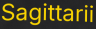
Sagittarii